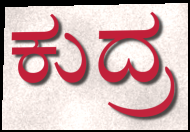
ಕುದ್ರ